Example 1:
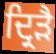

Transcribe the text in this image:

ਦ੍ਰਿੜੈ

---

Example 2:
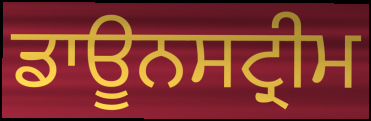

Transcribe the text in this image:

ਡਾਊਨਸਟ੍ਰੀਮ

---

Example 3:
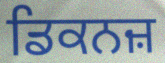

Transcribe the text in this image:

ਡਿਕਨਜ਼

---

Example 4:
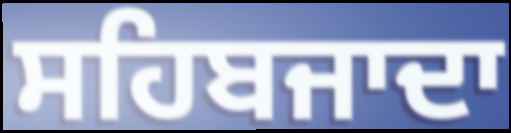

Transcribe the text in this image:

ਸਹਿਬਜਾਦਾ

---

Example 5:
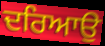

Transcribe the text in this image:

ਦਰਿਆਉ